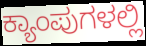
ಕ್ಯಾಂಪುಗಳಲ್ಲಿ